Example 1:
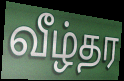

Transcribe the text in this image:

வீழ்தர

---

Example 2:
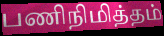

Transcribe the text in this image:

பணிநிமித்தம்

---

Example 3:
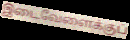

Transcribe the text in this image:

இடைவேளைக்குப்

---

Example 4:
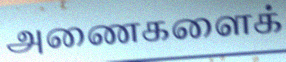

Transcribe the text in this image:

அணைகளைக்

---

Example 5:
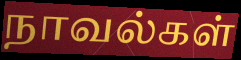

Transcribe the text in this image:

நாவல்கள்